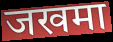
जखमा